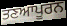
ਤਣਆਪੂਰਨ